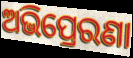
ଅଭିପ୍ରେରଣା